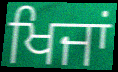
ਖਿਜਾਂ